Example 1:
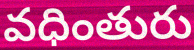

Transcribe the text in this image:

వధింతురు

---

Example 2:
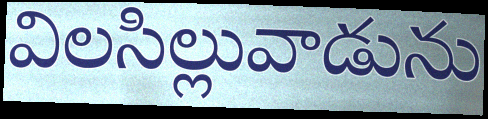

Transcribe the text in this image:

విలసిల్లువాడును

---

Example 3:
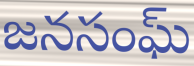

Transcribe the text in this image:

జనసంఘ్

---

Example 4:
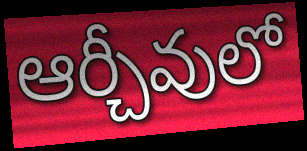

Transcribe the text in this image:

ఆర్చీవులో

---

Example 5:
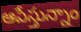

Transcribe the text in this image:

ఆపేస్తున్నాం